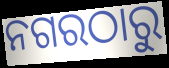
ନଗରଠାରୁ